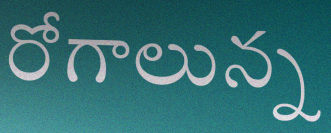
రోగాలున్న